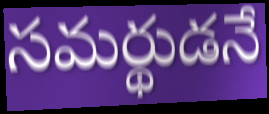
సమర్థుడనే